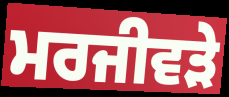
ਮਰਜੀਵੜੇ